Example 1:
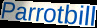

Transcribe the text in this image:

Parrotbill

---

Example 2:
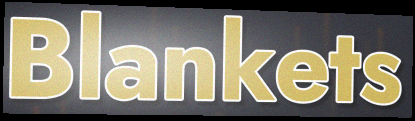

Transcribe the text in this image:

Blankets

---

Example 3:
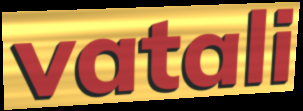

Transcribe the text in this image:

vatali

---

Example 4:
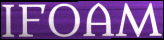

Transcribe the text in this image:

IFOAM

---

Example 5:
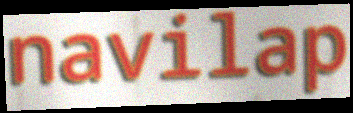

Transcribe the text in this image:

navilap